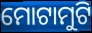
ମୋଟାମୁଟି